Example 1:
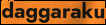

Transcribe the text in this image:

daggaraku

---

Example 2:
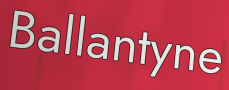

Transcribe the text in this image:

Ballantyne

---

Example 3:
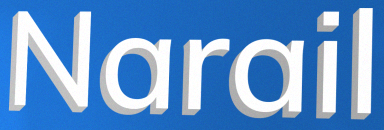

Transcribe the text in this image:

Narail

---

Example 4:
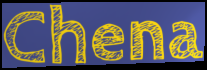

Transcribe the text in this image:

Chena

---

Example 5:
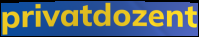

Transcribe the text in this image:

privatdozent